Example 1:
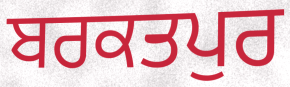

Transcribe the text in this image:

ਬਰਕਤਪੁਰ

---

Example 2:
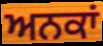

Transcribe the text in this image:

ਅਨਕਾਂ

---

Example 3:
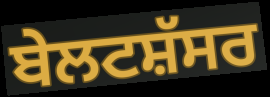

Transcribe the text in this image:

ਬੇਲਟਸ਼ੱਸਰ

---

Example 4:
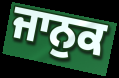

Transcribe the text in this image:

ਜਾਨੁਕ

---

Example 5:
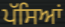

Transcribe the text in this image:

ਪੱਸਿਆਂ